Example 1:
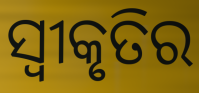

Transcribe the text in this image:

ସ୍ୱୀକୃତିର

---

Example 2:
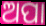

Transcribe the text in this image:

ଅପା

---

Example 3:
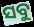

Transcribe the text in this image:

ସବୁ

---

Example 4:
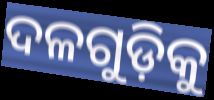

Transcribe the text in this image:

ଦଳଗୁଡ଼ିକୁ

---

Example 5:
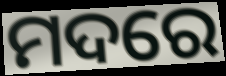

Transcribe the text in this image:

ମଦରେ